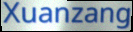
Xuanzang